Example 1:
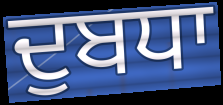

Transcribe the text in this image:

ਦੁਬਧਾ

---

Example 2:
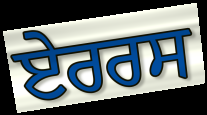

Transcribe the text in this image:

ਏਰਰਸ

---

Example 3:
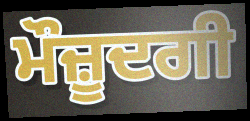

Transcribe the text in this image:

ਮੌਜ਼ੂਦਗੀ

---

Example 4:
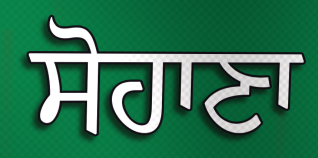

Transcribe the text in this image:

ਸੋਹਾਣਾ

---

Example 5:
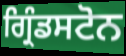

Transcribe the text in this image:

ਗ੍ਰਿੰਡਸਟੋਨ